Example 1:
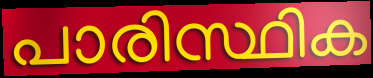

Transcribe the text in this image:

പാരിസ്ഥിക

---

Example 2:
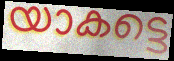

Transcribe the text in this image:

യാകട്ടെ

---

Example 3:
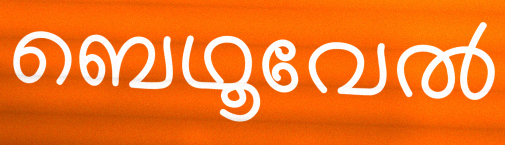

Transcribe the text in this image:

ബെഥൂവേൽ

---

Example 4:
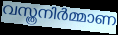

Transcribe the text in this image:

വസ്ത്രനിർമ്മാണ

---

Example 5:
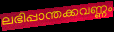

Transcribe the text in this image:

ലഭിപ്പാന്തക്കവണ്ണം